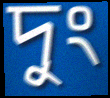
দুং